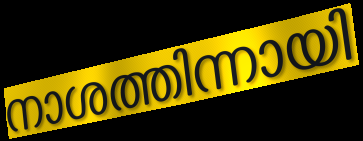
നാശത്തിന്നായി